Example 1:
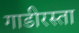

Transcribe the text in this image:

गाडीरस्ता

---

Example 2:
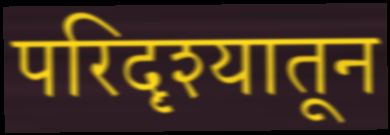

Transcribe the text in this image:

परिदृश्यातून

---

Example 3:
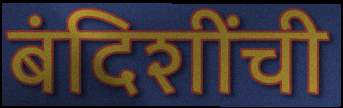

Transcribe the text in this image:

बंदिशींची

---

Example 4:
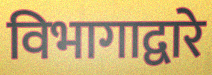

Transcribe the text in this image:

विभागाद्वारे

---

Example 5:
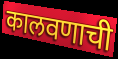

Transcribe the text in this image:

कालवणाची